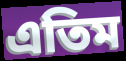
এতিম